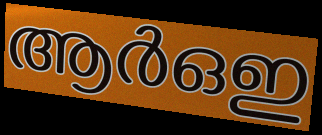
ആർഒഇ